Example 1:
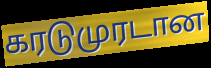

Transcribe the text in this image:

கரடுமுரடான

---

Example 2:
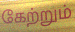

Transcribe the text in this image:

கேற்றும்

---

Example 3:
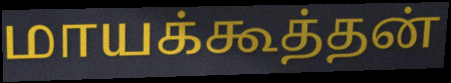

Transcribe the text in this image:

மாயக்கூத்தன்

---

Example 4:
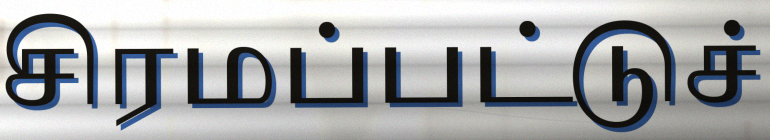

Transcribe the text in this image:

சிரமப்பட்டுச்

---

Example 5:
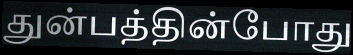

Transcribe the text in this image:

துன்பத்தின்போது